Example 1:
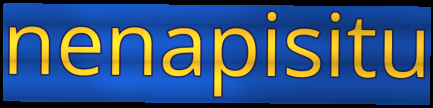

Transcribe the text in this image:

nenapisitu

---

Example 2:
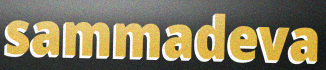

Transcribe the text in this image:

sammadeva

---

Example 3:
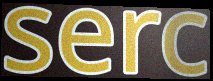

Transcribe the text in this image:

serc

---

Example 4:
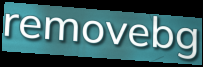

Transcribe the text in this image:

removebg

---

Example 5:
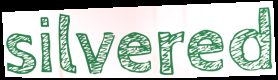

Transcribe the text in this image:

silvered